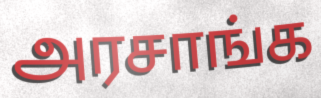
அரசாங்க